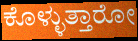
ಕೊಳ್ಳುತ್ತಾರೋ